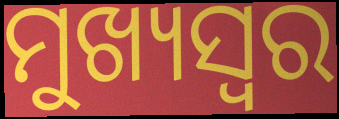
ମୁଖ୍ୟସ୍ୱର